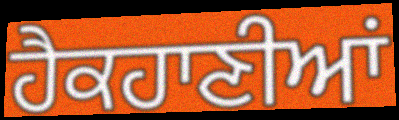
ਹੈਕਹਾਣੀਆਂ